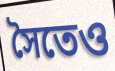
সৈতেও